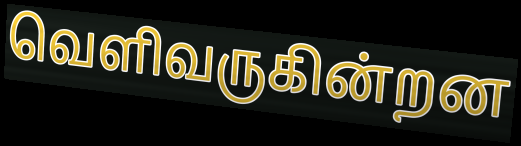
வெளிவருகின்றன